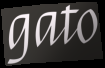
gato